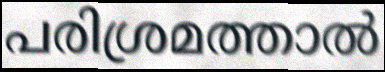
പരിശ്രമത്താൽ